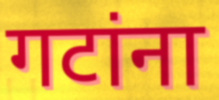
गटांना